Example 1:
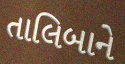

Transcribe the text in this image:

તાલિબાને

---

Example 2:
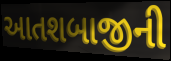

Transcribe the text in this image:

આતશબાજીની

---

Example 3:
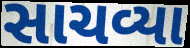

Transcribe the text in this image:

સાચવ્યા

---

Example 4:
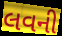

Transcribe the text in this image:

લવની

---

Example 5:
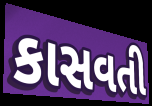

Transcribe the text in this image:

કાસવતી